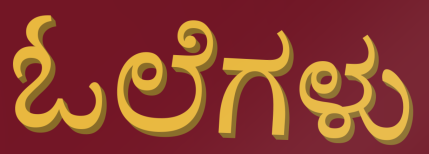
ಓಲೆಗಳು